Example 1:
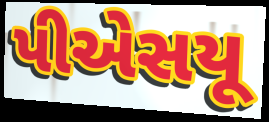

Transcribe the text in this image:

પીએસયૂ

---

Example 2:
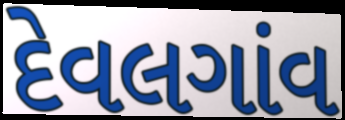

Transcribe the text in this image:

દેવલગાંવ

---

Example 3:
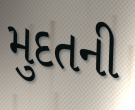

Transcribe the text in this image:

મુદતની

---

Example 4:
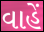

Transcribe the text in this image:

વાહેં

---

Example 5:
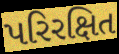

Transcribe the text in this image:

પરિરક્ષિત